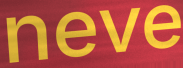
neve